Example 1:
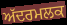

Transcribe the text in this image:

ਅੱਦਰਮਲਕ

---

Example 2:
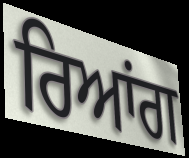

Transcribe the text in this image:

ਰਿਆਂਗ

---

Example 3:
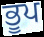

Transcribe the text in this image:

ਭੂਪ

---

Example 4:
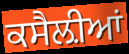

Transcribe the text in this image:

ਕਸੈਲ਼ੀਆਂ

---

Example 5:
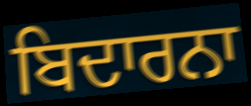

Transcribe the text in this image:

ਬਿਦਾਰਨਾ